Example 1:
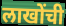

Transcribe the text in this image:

लाखोंची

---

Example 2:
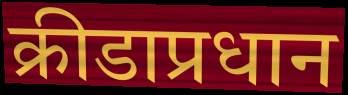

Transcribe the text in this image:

क्रीडाप्रधान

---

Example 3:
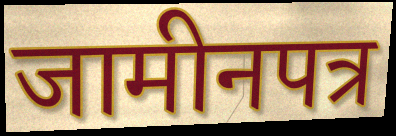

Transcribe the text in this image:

जामीनपत्र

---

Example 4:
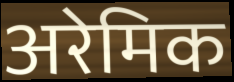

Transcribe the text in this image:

अरेमिक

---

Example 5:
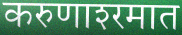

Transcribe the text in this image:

करुणाश्रमात